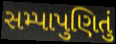
સમ્પાપુણિતું